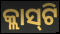
କ୍ଲାସ୍‌ଟି